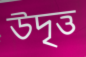
উদৃত্ত